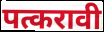
पत्करावी